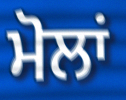
ਮੋਲਾਂ